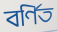
বৰ্ণিত